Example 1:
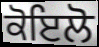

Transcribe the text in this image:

ਕੋਇਲੋ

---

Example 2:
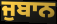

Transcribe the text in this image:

ਜੁਬਾਨ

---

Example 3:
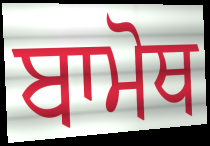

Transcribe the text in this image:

ਬਾਮੋਥ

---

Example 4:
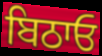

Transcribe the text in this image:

ਬਿਠਾਓ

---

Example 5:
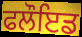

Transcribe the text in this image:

ਫਲੌਇਡ